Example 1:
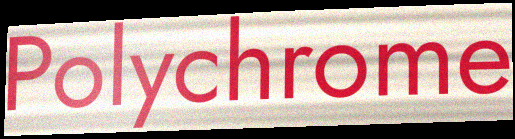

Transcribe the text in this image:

Polychrome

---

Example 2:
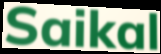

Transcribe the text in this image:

Saikal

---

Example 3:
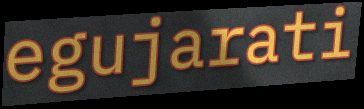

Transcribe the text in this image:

egujarati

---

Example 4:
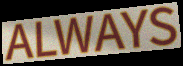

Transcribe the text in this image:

ALWAYS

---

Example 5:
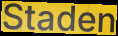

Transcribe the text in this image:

Staden